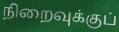
நிறைவுக்குப்